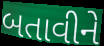
બતાવીને